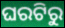
ଘରଟିରୁ